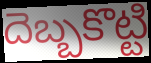
దెబ్బకొట్టి